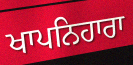
ਖਾਪਨਿਹਾਰਾ